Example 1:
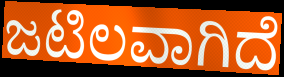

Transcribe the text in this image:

ಜಟಿಲವಾಗಿದೆ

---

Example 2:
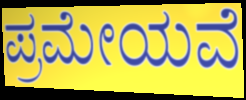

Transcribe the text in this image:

ಪ್ರಮೇಯವೆ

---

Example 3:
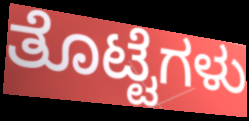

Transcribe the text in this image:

ತೊಟ್ಟೆಗಳು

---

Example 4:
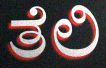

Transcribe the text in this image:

ತೆಲಿ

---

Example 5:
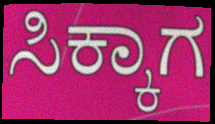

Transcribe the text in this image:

ಸಿಕ್ಕಾಗ